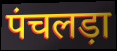
पंचलड़ा